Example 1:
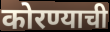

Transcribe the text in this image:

कोरण्याची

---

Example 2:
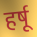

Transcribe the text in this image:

हर्षू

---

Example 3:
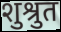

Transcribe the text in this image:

शुश्रुत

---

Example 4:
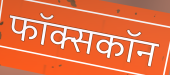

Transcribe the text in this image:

फॉक्सकॉन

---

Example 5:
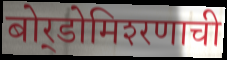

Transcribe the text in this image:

बोर्डोमिश्रणाची